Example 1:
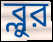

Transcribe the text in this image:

ব্লুর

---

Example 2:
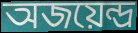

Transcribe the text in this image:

অজয়েন্দ্র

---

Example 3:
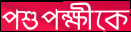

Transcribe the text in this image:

পশুপক্ষীকে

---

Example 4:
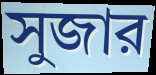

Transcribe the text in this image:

সুজার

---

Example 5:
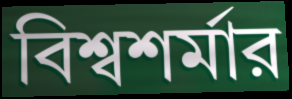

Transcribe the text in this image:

বিশ্বশর্মার